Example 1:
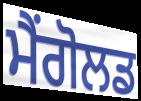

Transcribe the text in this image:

ਮੈਂਗੋਲਡ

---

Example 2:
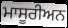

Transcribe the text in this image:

ਮਾਸੂਰੀਅਨ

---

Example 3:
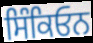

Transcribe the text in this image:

ਸਿੰਕਿਓਨ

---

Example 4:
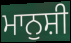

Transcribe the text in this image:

ਮਾਨੁਸ਼ੀ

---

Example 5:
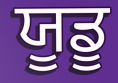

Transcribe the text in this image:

ਯੂਡੂ